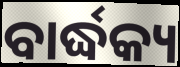
ବାର୍ଦ୍ଧକ୍ୟ